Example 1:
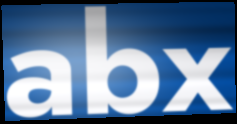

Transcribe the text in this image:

abx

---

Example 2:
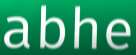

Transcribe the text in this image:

abhe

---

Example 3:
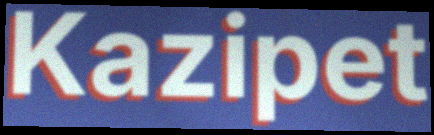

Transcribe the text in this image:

Kazipet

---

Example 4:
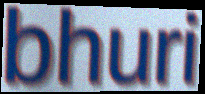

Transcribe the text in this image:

bhuri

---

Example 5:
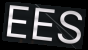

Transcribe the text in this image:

EES